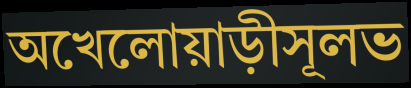
অখেলোয়াড়ীসূলভ